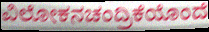
ವಿಲೋಕನಚಂದ್ರಿಕೆಯೊಂದೆ